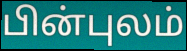
பின்புலம்